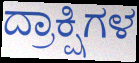
ದ್ರಾಕ್ಷಿಗಳ